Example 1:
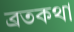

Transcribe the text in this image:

ব্রতকথা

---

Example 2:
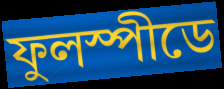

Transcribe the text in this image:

ফুলস্পীডে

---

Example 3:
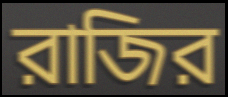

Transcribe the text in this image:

রাজির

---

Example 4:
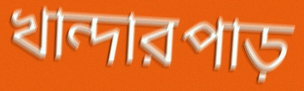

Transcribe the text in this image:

খান্দারপাড়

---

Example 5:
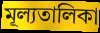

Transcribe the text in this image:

মূল্যতালিকা